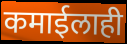
कमाईलाही